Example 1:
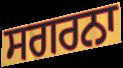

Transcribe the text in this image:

ਸਗਰਨਾ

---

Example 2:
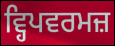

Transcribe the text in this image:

ਵ੍ਹਿਪਵਰਮਜ਼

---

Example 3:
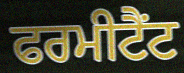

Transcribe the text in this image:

ਫਰਮੀਟੈਂਟ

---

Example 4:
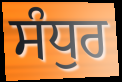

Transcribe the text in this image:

ਸੰਧੁਰ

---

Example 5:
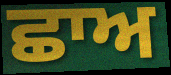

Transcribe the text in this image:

ਛਾਅ